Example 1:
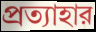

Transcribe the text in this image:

প্রত্যাহার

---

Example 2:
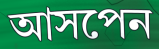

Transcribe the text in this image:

আসপেন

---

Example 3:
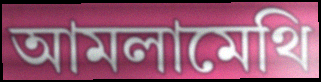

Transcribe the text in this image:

আমলামেথি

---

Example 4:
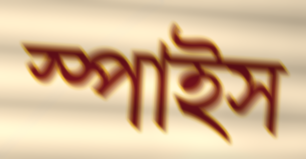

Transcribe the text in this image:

স্পাইস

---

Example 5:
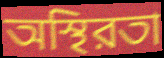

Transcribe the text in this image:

অস্থিরতা